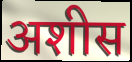
अशीस